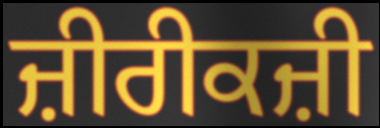
ਜ਼ੀਰੀਕਜ਼ੀ